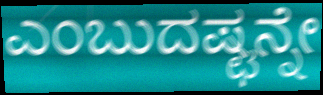
ಎಂಬುದಷ್ಟನ್ನೇ